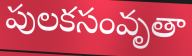
పులకసంవృతా